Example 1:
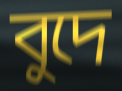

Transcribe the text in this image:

বুদে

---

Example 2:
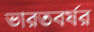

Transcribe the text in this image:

ভারতবর্ষর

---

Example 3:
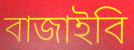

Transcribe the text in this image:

বাজাইবি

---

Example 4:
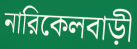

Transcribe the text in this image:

নারিকেলবাড়ী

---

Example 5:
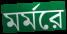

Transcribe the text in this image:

মর্মরে